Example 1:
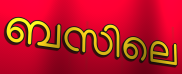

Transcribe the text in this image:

ബസിലെ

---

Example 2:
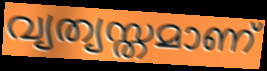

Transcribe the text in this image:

വ്യത്യസ്തമാണ്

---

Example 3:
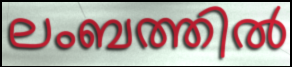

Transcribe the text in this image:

ലംബത്തിൽ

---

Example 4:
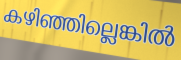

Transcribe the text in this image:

കഴിഞ്ഞില്ലെങ്കിൽ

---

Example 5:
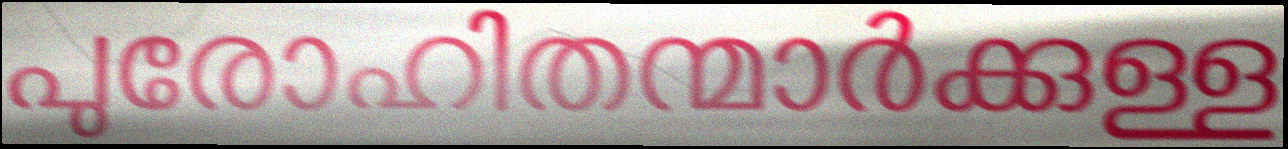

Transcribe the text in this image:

പുരോഹിതന്മാർക്കുള്ള